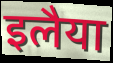
इलैया